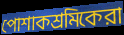
পোশাকশ্রমিকেরা